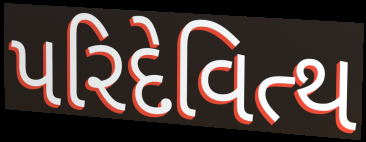
પરિદેવિત્થ